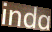
inda